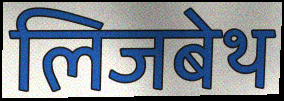
लिजबेथ